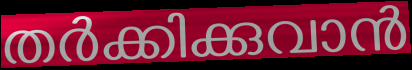
തർക്കിക്കുവാൻ